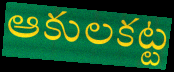
ఆకులకట్ట